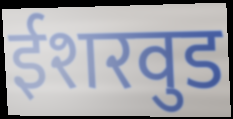
ईशरवुड